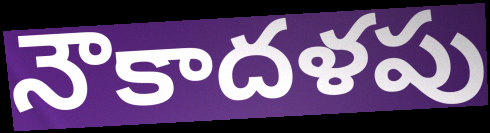
నౌకాదళపు